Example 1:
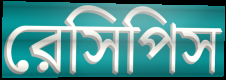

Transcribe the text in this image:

রেসিপিস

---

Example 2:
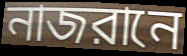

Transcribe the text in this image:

নাজরানে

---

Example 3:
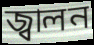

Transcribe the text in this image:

জ্বালন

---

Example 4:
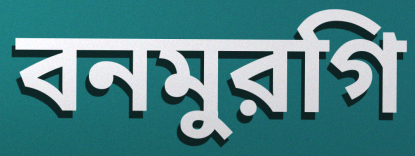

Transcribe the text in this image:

বনমুরগি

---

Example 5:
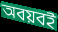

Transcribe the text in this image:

অবয়বই